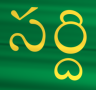
సర్ది